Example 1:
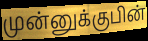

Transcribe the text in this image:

முன்னுக்குபின்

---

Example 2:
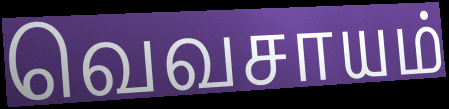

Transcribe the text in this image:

வெவசாயம்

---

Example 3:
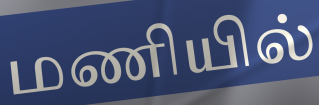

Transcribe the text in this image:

மணியில்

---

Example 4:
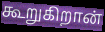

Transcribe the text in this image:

கூறுகிறான்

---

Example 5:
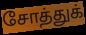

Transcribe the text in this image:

சோத்துக்